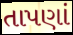
તાપણાં